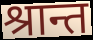
श्रान्त